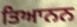
ਤਿਆਨਨ